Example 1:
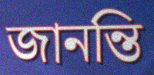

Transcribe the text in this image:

জানন্তি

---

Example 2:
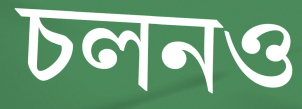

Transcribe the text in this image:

চলনও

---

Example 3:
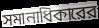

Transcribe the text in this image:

সমানাধিকারের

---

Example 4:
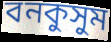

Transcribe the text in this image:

বনকুসুম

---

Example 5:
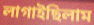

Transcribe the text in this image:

লাগাইছিলাম